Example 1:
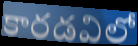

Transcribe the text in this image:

కారడవిలో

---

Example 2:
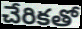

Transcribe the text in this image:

చేరికతో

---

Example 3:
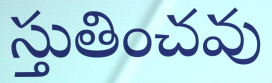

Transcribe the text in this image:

స్తుతించవు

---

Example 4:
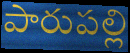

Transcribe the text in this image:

పారుపల్లి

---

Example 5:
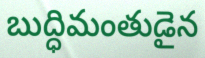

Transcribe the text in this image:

బుద్ధిమంతుడైన